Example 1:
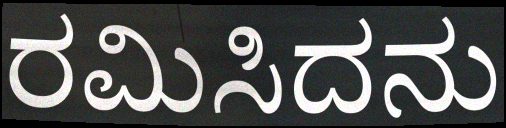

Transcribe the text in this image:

ರಮಿಸಿದನು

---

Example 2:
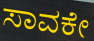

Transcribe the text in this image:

ಸಾವಕೇ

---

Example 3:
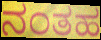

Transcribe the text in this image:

ನಂತಹ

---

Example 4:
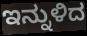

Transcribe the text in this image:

ಇನ್ನುಳಿದ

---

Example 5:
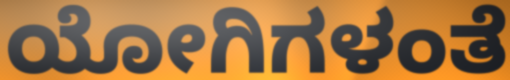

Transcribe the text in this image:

ಯೋಗಿಗಳಂತೆ